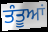
ਤੰਤੂਆਂ